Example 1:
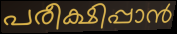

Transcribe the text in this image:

പരീക്ഷിപ്പാൻ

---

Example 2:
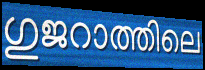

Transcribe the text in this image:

ഗുജറാത്തിലെ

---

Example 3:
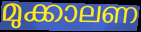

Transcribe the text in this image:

മുക്കാലണ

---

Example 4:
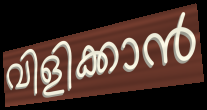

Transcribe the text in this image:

വിളിക്കാൻ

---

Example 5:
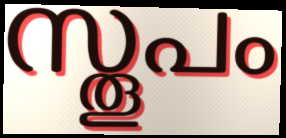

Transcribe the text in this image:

സ്തൂപം